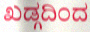
ಖಡ್ಗದಿಂದ